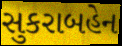
સુકરાબહેન